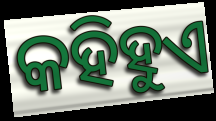
କହିହୁଏ